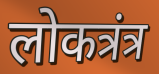
लोकत्रंत्र